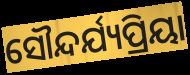
ସୌନ୍ଦର୍ଯ୍ୟପ୍ରିୟା